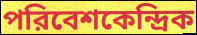
পরিবেশকেন্দ্রিক